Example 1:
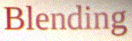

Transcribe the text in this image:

Blending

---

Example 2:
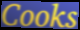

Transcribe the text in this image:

Cooks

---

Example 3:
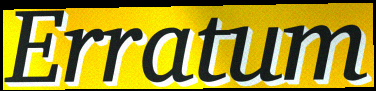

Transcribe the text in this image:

Erratum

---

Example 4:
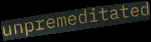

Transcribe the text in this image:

unpremeditated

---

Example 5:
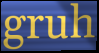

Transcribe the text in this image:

gruh